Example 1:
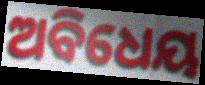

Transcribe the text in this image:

ଅବିଧେୟ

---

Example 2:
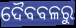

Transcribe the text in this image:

ଦୈବବଳରୁ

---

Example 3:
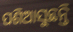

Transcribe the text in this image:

ପଶିଆସୁଛନ୍ତି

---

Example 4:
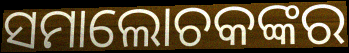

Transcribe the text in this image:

ସମାଲୋଚକଙ୍କର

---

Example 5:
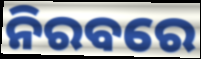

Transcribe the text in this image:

ନିରବରେ